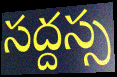
సద్దస్స